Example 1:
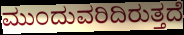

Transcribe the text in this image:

ಮುಂದುವರಿದಿರುತ್ತದೆ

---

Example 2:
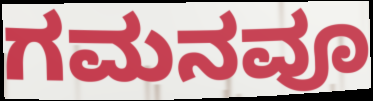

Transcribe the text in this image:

ಗಮನವೂ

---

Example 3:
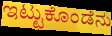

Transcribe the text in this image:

ಇಟ್ಟುಕೊಂಡೆನು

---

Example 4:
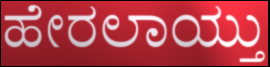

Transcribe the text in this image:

ಹೇರಲಾಯ್ತು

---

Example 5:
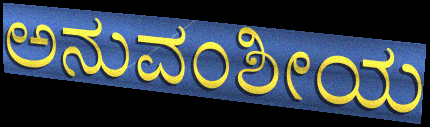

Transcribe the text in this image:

ಅನುವಂಶೀಯ